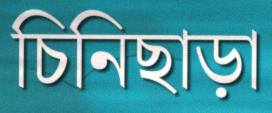
চিনিছাড়া